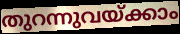
തുറന്നുവയ്ക്കാം